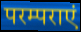
परम्पराएं